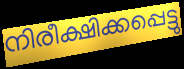
നിരീക്ഷിക്കപ്പെട്ടു